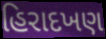
હિરાદખણ